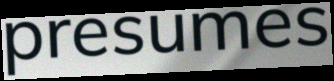
presumes